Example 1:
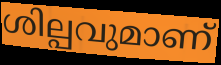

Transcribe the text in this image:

ശില്പവുമാണ്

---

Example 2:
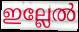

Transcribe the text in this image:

ഇല്ലേൽ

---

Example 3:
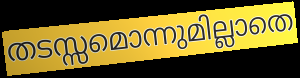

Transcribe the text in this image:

തടസ്സമൊന്നുമില്ലാതെ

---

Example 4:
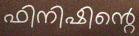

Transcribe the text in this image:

ഫിനിഷിന്റെ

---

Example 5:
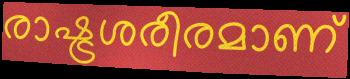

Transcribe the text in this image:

രാഷ്ട്രശരീരമാണ്